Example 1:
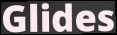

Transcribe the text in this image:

Glides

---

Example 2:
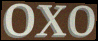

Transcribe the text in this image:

oxo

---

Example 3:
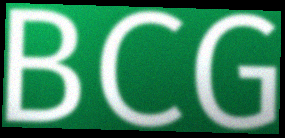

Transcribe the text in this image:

BCG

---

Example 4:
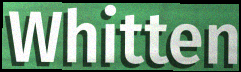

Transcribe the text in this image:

Whitten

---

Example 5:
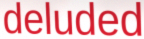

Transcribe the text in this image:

deluded